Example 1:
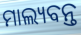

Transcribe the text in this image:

ମାଲ୍ୟବନ୍ତ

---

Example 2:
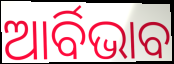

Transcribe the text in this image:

ଆର୍ବିଭାବ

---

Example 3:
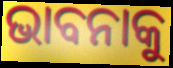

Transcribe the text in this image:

ଭାବନାକୁ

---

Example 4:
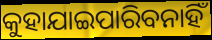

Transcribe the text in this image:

କୁହାଯାଇପାରିବନାହିଁ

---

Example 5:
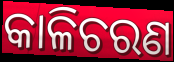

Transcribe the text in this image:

କାଳିଚରଣ